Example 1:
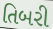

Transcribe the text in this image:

તિબરી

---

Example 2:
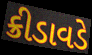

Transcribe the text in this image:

ક્રીડાવડે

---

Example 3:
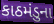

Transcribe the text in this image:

કાઠમંડુના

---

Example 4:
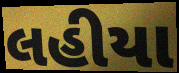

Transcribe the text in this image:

લહીયા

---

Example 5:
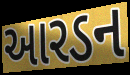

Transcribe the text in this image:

આરડન